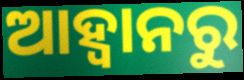
ଆହ୍ବାନରୁ